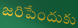
జరిపేందుకు